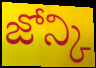
జోన్కి